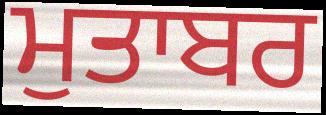
ਮੁਤਾਬਰ